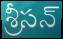
శ్రీసన్